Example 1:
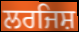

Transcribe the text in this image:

ਲਰਜਿਸ਼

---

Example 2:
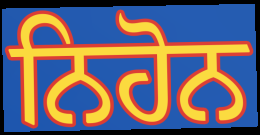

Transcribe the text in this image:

ਨਿਹੋਨ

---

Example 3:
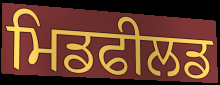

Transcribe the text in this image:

ਮਿਡਫੀਲਡ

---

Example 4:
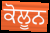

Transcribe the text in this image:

ਕੋਲੂਨ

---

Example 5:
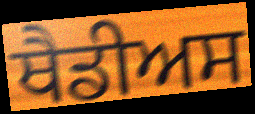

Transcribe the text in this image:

ਥੈਡੀਅਸ